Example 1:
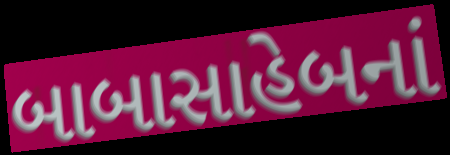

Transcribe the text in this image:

બાબાસાહેબનાં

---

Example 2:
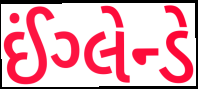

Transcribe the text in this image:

ઈંગ્લેન્ડે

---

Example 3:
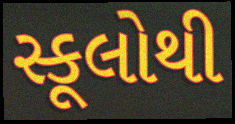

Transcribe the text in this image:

સ્કૂલોથી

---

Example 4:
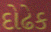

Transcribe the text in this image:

દોઢેક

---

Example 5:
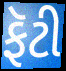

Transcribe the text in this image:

ફૅટી